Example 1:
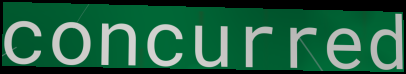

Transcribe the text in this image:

concurred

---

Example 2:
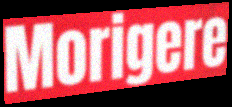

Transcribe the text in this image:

Morigere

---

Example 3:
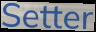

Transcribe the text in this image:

Setter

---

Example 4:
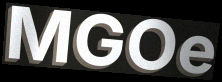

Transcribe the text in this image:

MGOe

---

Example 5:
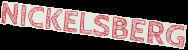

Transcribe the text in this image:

NICKELSBERG